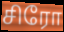
சிரோ